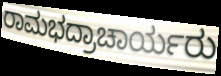
ರಾಮಭದ್ರಾಚಾರ್ಯರು